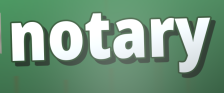
notary